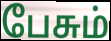
பேசும்